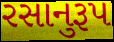
રસાનુરૂપ